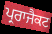
ਪ੍ਰਰਾਜੈਕਟ